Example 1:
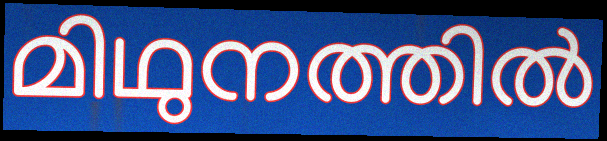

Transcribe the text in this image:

മിഥുനത്തിൽ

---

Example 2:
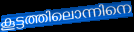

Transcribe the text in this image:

കൂട്ടത്തിലൊന്നിനെ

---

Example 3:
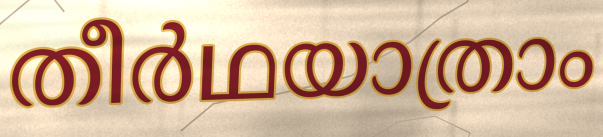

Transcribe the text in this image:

തീർഥയാത്രാം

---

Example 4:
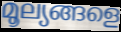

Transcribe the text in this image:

മൂല്യങ്ങളെ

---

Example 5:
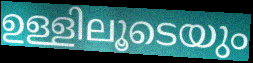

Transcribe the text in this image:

ഉള്ളിലൂടെയും